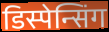
डिस्पेन्सिंग